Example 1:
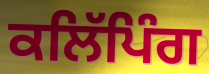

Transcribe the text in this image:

ਕਲਿੱਪਿੰਗ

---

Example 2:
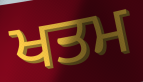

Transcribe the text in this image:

ਖਤਮ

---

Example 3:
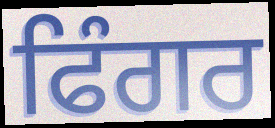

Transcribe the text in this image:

ਫਿੰਗਰ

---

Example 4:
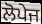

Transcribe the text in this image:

ਲੋਪੇਜ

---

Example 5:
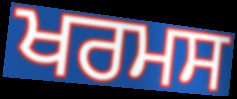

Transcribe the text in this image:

ਖਰਮਸ